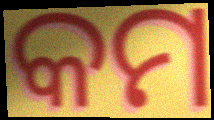
କମ